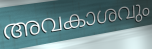
അവകാശവും